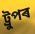
ট্ৰুপৰ